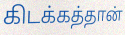
கிடக்கத்தான்